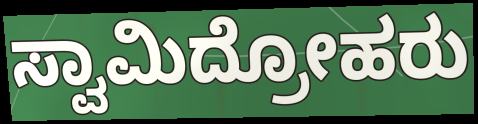
ಸ್ವಾಮಿದ್ರೋಹರು